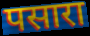
पसारा